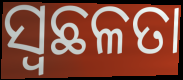
ସ୍ଵଛଳତା